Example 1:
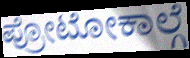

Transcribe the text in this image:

ಪ್ರೋಟೋಕಾಲ್ಗೆ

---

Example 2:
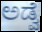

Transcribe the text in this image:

ಅಡ್ವೆ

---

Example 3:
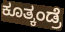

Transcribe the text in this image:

ಕೂತ್ಕಂಡ್ರೆ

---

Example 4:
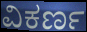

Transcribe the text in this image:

ವಿಕರ್ಣ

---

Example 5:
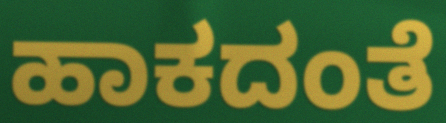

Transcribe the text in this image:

ಹಾಕದಂತೆ